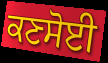
ਕਣਸੋਈ